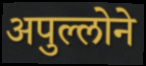
अपुल्लोने